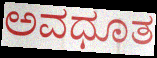
ಅವಧೂತ